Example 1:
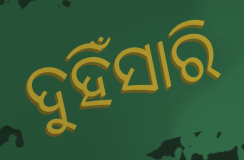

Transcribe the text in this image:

ଦୁହିଁସାରି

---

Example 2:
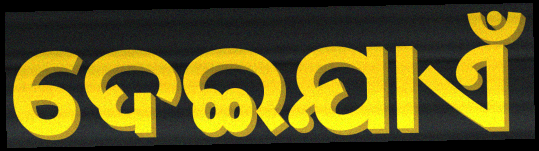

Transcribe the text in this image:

ଦେଇଯାଏଁ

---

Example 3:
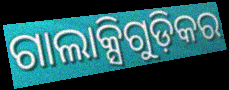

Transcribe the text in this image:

ଗାଲାକ୍ସିଗୁଡ଼ିକର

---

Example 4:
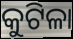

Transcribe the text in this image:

କୁଟିଳା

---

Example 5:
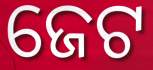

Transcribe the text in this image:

ଜେଟ